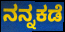
ನನ್ನಕಡೆ